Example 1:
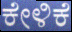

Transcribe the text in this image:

ಕೇಳಿಕೆ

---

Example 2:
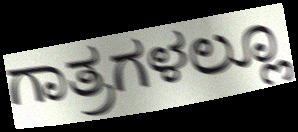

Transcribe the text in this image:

ಗಾತ್ರಗಳಲ್ಲೂ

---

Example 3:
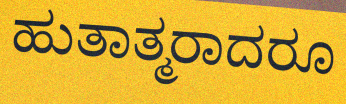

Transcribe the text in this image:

ಹುತಾತ್ಮರಾದರೂ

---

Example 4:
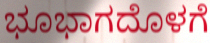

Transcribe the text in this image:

ಭೂಭಾಗದೊಳಗೆ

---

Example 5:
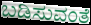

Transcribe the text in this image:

ಬಡಿಸುವಂತೆ